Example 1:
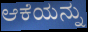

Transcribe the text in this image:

ಆಕೆಯನ್ನು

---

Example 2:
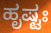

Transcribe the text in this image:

ಹೃಷ್ಟಃ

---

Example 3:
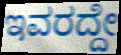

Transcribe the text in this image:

ಇವರದ್ದೇ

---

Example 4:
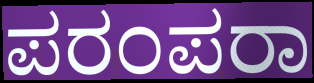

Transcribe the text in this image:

ಪರಂಪರಾ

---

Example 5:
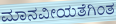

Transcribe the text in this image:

ಮಾನವೀಯತೆಗಿಂತ